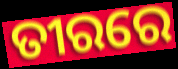
ତୀରରେ